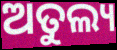
ଅତୁଲ୍ୟ